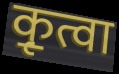
कृ॒त्वा